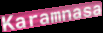
Karamnasa